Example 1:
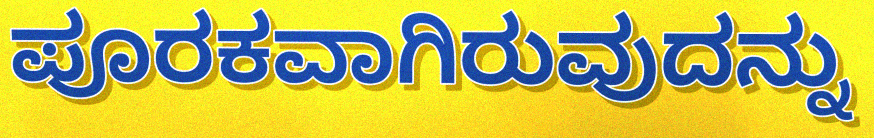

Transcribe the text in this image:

ಪೂರಕವಾಗಿರುವುದನ್ನು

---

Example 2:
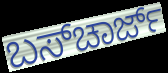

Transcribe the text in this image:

ಬಸ್‌ಚಾರ್ಜ್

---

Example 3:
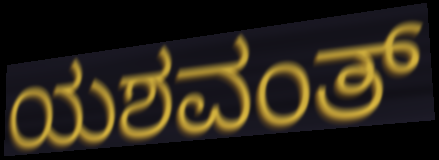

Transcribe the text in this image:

ಯಶವಂತ್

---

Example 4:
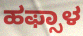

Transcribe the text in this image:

ಹಫ್ಸಾಳ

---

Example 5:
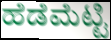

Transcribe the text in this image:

ಹೆಡೆಮೆಟ್ಟಿ